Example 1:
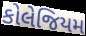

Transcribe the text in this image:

કોલેજિયમ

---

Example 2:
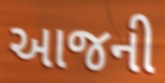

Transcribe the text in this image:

આજની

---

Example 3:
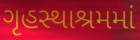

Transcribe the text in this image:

ગૃહસ્થાશ્રમમાં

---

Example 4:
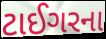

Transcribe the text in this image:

ટાઈગરના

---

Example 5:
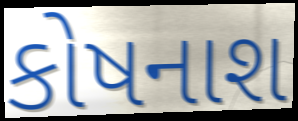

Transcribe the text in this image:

કોષનાશ